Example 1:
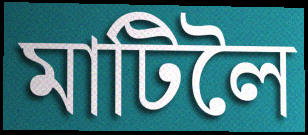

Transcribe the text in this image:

মাটিলৈ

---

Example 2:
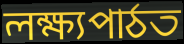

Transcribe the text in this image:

লক্ষ্যপাঠত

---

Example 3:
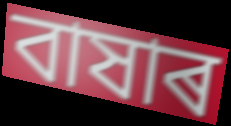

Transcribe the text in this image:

বাষাৰ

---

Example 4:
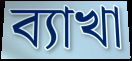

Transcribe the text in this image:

ব্যাখা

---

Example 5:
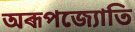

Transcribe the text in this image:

অৰূপজ্যোতি